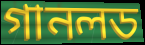
গানলড